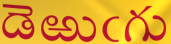
డెఱుఁగు